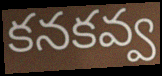
కనకవ్వ